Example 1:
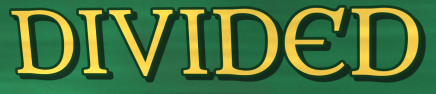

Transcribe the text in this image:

DIVIDED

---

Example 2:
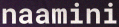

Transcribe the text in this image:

naamini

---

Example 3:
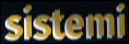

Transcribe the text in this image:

sistemi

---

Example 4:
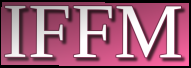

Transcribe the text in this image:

IFFM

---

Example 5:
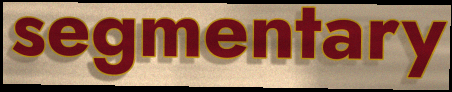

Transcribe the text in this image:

segmentary